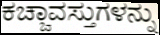
ಕಚ್ಚಾವಸ್ತುಗಳನ್ನು